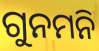
ଗୁନମନି